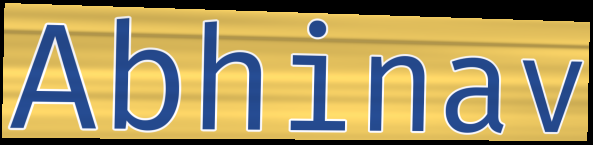
Abhinav